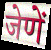
जेणें